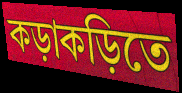
কড়াকড়িতে